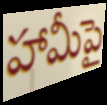
హామీపై